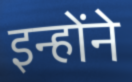
इन्‍होंने